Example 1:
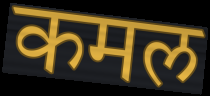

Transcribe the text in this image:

कमल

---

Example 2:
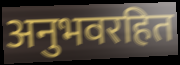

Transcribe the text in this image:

अनुभवरहित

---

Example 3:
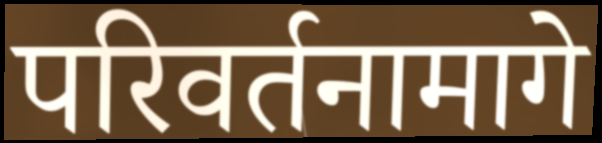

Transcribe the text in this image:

परिवर्तनामागे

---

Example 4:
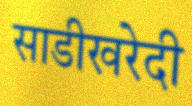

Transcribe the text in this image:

साडीखरेदी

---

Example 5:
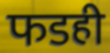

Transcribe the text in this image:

फडही